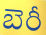
బెరీ